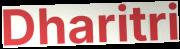
Dharitri